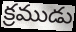
క్రముడు